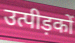
उत्पीड़कों